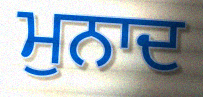
ਮੁਨਾਦ